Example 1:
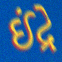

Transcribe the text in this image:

ઈંદ્રે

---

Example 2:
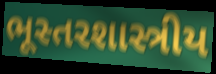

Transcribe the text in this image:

ભૂસ્તરશાસ્ત્રીય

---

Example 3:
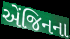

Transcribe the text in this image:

એંજિનના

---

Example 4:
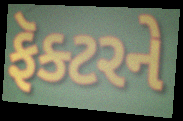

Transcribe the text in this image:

ફૅક્ટરને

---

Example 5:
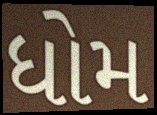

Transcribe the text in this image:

ધોમ